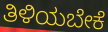
ತಿಳಿಯಬೇಕೆ